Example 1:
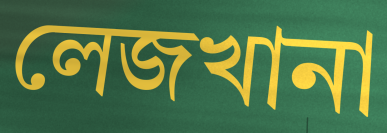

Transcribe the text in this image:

লেজখানা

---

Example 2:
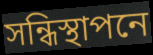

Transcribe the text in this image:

সন্ধিস্থাপনে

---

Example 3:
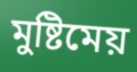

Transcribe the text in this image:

মুষ্টিমেয়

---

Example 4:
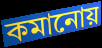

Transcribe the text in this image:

কমানোয়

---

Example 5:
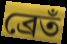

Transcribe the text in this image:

ব্রেতঁ